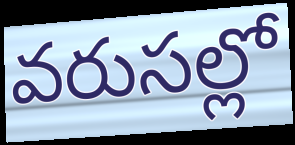
వరుసల్లో